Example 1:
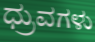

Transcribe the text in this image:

ಧ್ರುವಗಳು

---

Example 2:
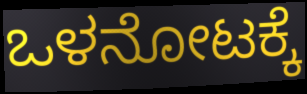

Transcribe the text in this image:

ಒಳನೋಟಕ್ಕೆ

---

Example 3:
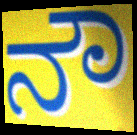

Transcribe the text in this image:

ನೌ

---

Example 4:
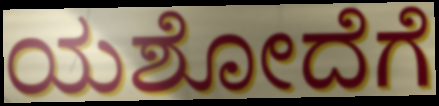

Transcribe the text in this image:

ಯಶೋದೆಗೆ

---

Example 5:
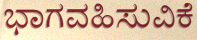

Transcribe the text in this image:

ಭಾಗವಹಿಸುವಿಕೆ